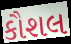
કૌશલ